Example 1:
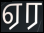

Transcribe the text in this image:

ஏர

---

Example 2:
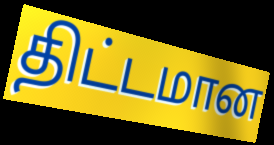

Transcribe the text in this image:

திட்டமான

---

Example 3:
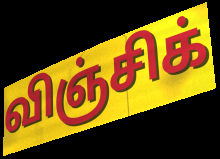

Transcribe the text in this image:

விஞ்சிக்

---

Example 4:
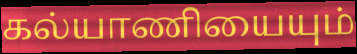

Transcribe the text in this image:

கல்யாணியையும்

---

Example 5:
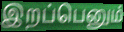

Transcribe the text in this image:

இறப்பெனும்